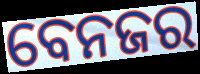
ବେନଜର